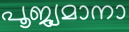
പൂജ്യമാനാ